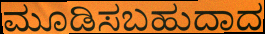
ಮೂಡಿಸಬಹುದಾದ